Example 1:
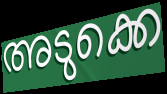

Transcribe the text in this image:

അടുക്കെ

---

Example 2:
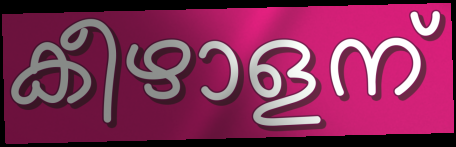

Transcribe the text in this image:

കീഴാളന്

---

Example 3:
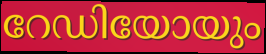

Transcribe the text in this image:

റേഡിയോയും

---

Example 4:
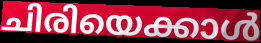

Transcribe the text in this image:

ചിരിയെക്കാൾ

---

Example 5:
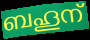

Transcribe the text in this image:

ബഹൂന്